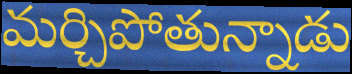
మర్చిపోతున్నాడు